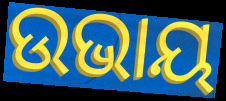
ଉଭାୟ